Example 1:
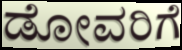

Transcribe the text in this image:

ಡೋವರಿಗೆ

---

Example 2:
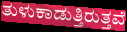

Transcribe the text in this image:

ತುಳುಕಾಡುತ್ತಿರುತ್ತವೆ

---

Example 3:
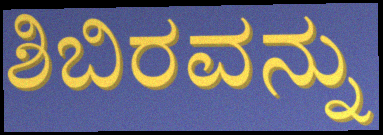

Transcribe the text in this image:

ಶಿಬಿರವನ್ನು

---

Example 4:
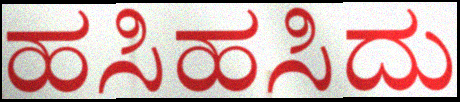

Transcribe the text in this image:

ಹಸಿಹಸಿದು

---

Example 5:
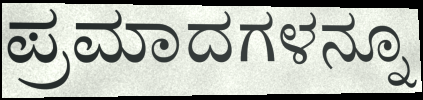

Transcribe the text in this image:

ಪ್ರಮಾದಗಳನ್ನೂ